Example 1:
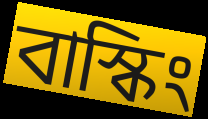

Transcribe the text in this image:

বাস্কিং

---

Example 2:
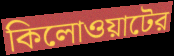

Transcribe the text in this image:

কিলোওয়াটের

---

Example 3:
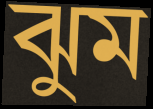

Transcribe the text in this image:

ঝুম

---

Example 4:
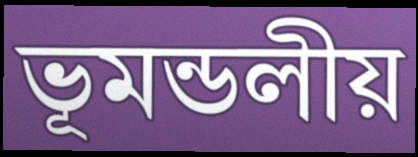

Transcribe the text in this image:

ভূমন্ডলীয়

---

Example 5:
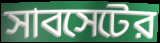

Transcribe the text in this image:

সাবসেটের